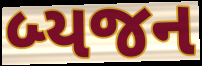
બ્યજન